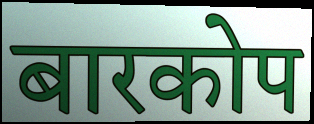
बारकोप